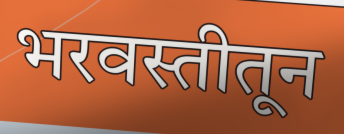
भरवस्तीतून